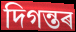
দিগন্তৰ